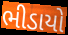
ભીડાયો